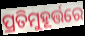
ପ୍ରତିମୁହୂର୍ତ୍ତରେ